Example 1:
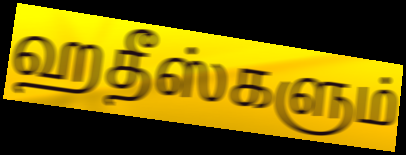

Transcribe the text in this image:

ஹதீஸ்களும்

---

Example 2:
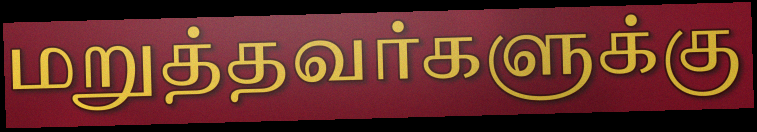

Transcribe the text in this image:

மறுத்தவர்களுக்கு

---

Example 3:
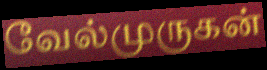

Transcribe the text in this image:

வேல்முருகன்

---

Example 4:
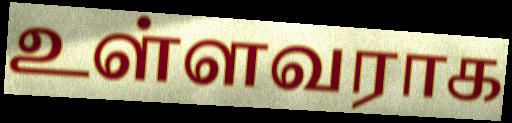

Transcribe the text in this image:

உள்ளவராக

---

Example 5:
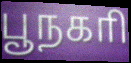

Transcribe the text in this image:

பூநகரி